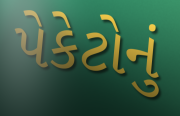
પેકેટોનું